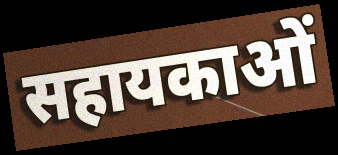
सहायकाओं